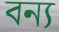
বন্য